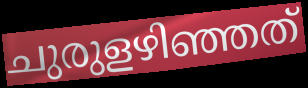
ചുരുളഴിഞ്ഞത്